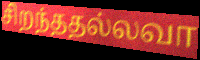
சிறந்ததல்லவா